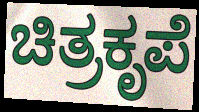
ಚಿತ್ರಕೃಪೆ